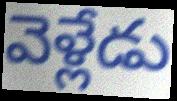
వెళ్లేడు